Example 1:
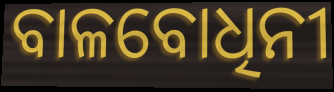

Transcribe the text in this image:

ବାଳବୋଧିନୀ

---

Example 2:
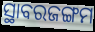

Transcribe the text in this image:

ସ୍ଥାବରଜଙ୍ଗମ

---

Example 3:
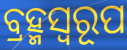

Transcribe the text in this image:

ବ୍ରହ୍ମସ୍ୱରୂପ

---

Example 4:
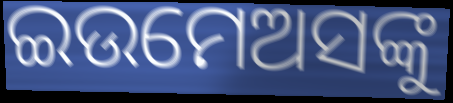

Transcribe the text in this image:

ଇଉମେଅସଙ୍କୁ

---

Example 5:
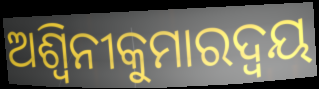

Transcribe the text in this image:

ଅଶ୍ୱିନୀକୁମାରଦ୍ୱୟ